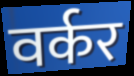
वर्कर